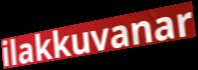
ilakkuvanar